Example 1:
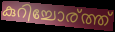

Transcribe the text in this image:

കുറിച്ചോര്ത്ത്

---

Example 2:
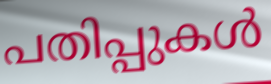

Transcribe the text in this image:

പതിപ്പുകൾ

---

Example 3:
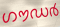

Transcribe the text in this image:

ഗൗഡർ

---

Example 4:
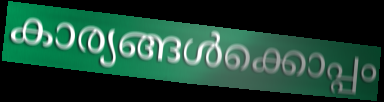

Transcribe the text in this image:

കാര്യങ്ങൾക്കൊപ്പം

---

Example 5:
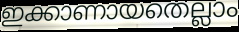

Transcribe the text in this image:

ഇക്കാണായതെല്ലാം